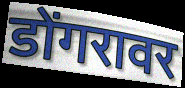
डोंगरावर